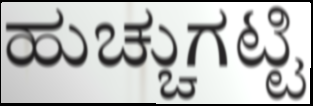
ಹುಚ್ಚುಗಟ್ಟಿ